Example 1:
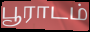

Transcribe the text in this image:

பூராடம்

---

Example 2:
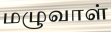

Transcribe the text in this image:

மழுவாள்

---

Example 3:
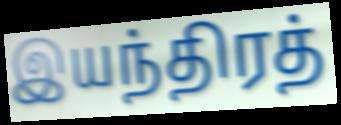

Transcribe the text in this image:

இயந்திரத்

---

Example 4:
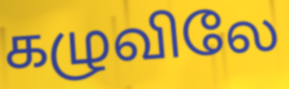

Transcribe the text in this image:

கழுவிலே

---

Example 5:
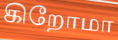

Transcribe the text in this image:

கிறோமா